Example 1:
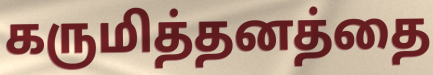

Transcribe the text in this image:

கருமித்தனத்தை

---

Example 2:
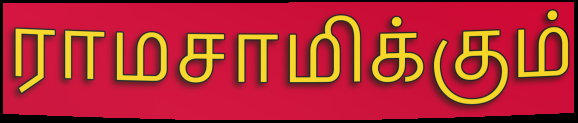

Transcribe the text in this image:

ராமசாமிக்கும்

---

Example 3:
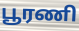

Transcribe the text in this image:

பூரணி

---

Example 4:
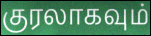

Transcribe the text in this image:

குரலாகவும்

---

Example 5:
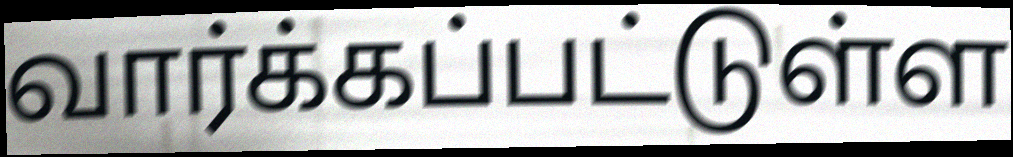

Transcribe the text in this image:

வார்க்கப்பட்டுள்ள